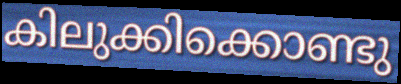
കിലുക്കിക്കൊണ്ടു